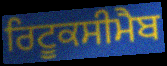
ਰਿਟੂਕਸੀਮੈਬ